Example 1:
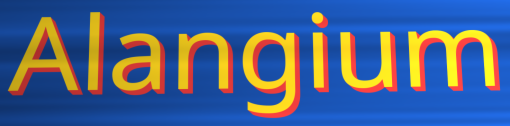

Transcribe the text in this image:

Alangium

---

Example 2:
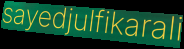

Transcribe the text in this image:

sayedjulfikarali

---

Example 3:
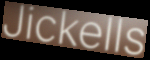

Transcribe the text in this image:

Jickells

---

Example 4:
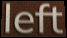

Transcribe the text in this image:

left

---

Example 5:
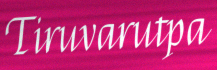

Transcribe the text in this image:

Tiruvarutpa